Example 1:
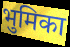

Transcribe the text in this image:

भुमिका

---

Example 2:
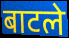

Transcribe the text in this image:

बाटले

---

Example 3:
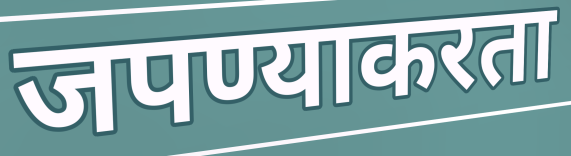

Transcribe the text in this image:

जपण्याकरता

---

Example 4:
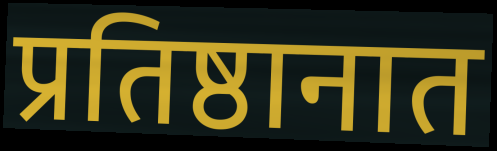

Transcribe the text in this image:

प्रतिष्ठानात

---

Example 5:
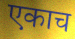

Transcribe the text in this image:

एकाच